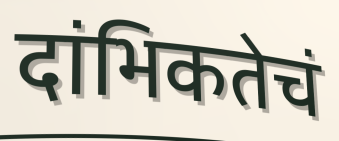
दांभिकतेचं